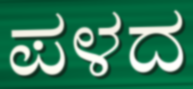
ಪಳದ